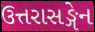
ઉત્તરાસઙ્ગેન